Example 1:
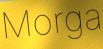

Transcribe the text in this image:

Morga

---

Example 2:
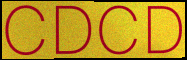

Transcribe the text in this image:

CDCD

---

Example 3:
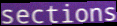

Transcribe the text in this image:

sections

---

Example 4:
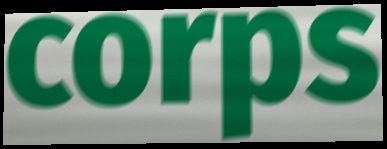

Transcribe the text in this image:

corps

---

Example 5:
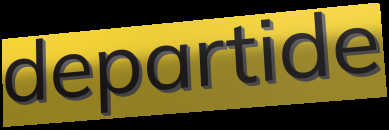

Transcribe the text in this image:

departide